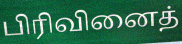
பிரிவினைத்